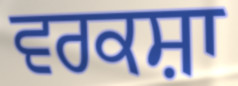
ਵਰਕਸ਼ਾ